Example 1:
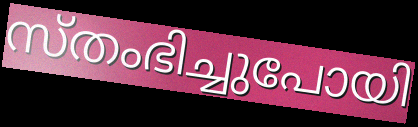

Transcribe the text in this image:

സ്തംഭിച്ചുപോയി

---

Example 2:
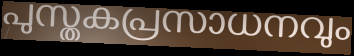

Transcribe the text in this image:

പുസ്തകപ്രസാധനവും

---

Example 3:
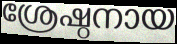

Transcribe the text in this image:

ശ്രേഷ്ഠനായ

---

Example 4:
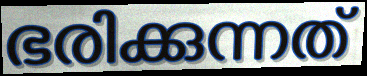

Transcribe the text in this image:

ഭരിക്കുന്നത്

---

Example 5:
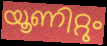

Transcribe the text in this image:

യൂണിറ്റും